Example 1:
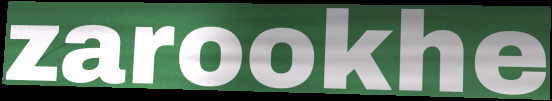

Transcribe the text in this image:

zarookhe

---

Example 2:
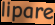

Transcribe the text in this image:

lipare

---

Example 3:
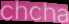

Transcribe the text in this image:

chcha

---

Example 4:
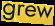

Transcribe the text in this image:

grew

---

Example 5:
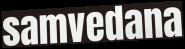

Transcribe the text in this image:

samvedana